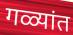
गळ्यांत